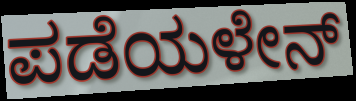
ಪಡೆಯಳೇನ್